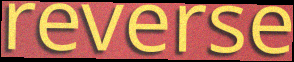
reverse